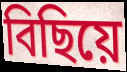
বিছিয়ে